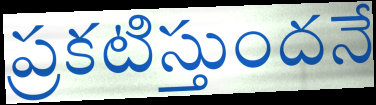
ప్రకటిస్తుందనే